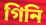
গিনি